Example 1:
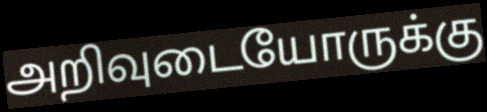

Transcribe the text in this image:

அறிவுடையோருக்கு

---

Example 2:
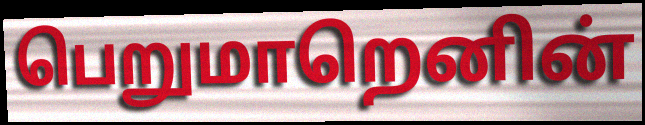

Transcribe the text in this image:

பெறுமாறெனின்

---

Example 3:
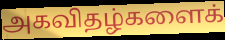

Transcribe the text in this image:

அகவிதழ்களைக்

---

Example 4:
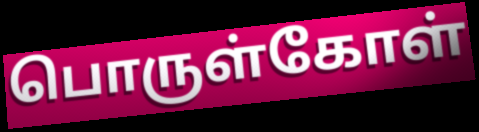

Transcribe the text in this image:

பொருள்கோள்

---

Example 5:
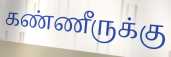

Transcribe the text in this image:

கண்ணீருக்கு